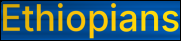
Ethiopians